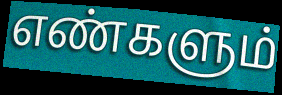
எண்களும்